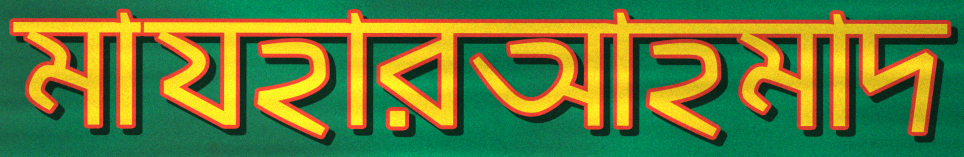
মাযহারআহমাদ